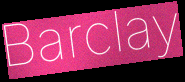
Barclay